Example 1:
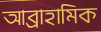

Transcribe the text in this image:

আব্রাহামিক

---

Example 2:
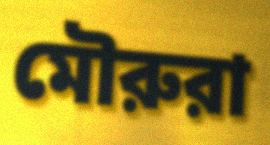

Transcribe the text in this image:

মৌরুরা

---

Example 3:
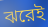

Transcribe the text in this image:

ঝরেই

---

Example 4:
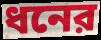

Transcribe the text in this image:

ধনের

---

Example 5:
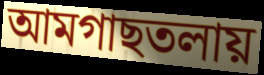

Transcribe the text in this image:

আমগাছতলায়